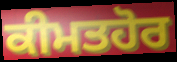
ਕੀਮਤਹੋਰ